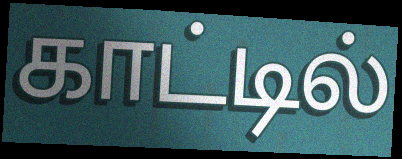
காட்டில்